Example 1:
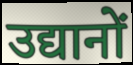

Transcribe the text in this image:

उद्यानों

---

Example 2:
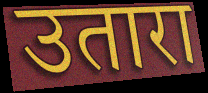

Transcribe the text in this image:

उतारा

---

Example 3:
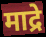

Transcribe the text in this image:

माद्रे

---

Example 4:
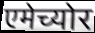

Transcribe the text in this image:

एमेच्योर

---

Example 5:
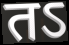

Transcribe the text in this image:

तऽ